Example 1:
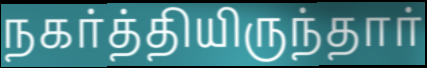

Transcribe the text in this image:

நகர்த்தியிருந்தார்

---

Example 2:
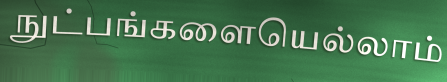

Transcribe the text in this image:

நுட்பங்களையெல்லாம்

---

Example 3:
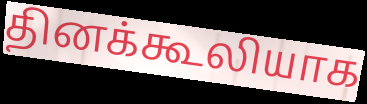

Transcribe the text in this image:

தினக்கூலியாக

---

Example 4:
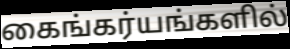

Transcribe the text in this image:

கைங்கர்யங்களில்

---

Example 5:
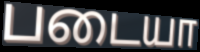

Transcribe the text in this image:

படையா